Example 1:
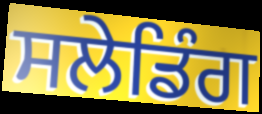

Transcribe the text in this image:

ਸਲੇਡਿੰਗ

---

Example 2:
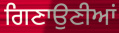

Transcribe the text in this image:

ਗਿਣਾਉਣੀਆਂ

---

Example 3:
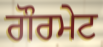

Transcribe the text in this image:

ਗੌਰਮੇਟ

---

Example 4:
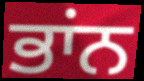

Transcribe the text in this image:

ਭਾਂਨ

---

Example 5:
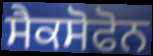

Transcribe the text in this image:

ਸੈਕਸੋਫੋਨ